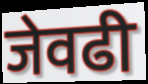
जेवढी